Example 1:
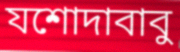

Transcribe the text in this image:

যশোদাবাবু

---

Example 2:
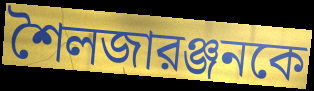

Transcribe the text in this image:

শৈলজারঞ্জনকে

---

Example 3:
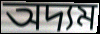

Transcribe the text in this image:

অদ্যম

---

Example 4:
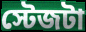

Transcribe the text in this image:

স্টেজটা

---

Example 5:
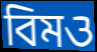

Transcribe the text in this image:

বিমও